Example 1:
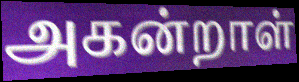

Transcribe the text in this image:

அகன்றாள்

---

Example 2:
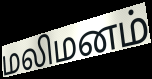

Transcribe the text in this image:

மலிமனம்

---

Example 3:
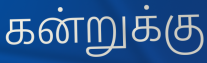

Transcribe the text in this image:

கன்றுக்கு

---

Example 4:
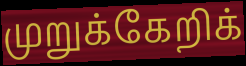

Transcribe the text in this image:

முறுக்கேறிக்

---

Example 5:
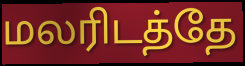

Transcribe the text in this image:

மலரிடத்தே